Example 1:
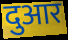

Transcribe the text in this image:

दुआर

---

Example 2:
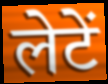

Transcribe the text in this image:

लेटें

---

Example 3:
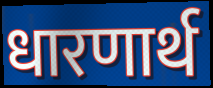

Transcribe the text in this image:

धारणार्थ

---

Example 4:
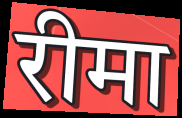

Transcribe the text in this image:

रीमा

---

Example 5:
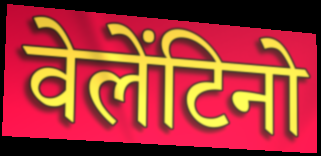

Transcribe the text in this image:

वेलेंटिनो